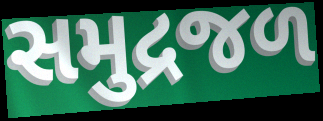
સમુદ્રજળ